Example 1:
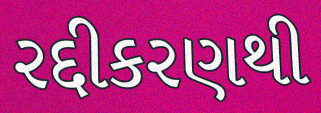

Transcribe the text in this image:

રદ્દીકરણથી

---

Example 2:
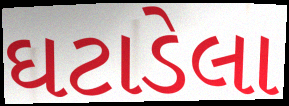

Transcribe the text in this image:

ઘટાડેલા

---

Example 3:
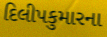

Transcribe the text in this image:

દિલીપકુમારના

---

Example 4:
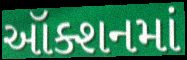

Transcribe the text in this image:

ઑક્શનમાં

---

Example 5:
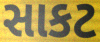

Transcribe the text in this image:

સાકટ